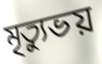
মৃত্যুভয়